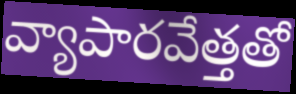
వ్యాపారవేత్తతో